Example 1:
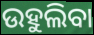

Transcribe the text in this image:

ଉହୁଲିବା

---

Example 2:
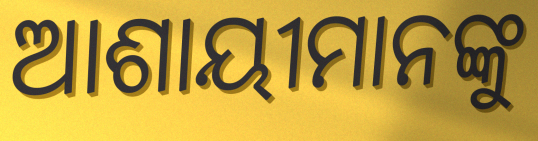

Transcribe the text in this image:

ଆଶାୟୀମାନଙ୍କୁ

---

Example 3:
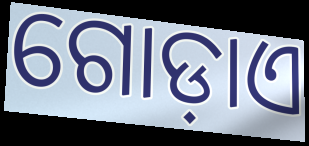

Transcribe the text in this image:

ଗୋଡ଼ାଏ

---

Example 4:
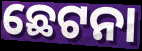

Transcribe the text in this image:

ଛେଟନା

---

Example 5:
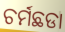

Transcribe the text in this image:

ଚର୍ମଛଡା